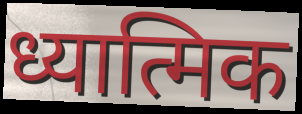
ध्यात्मिक